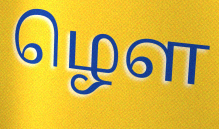
ழௌ